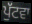
ਪੁੱਟਵਾ